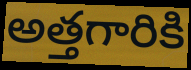
అత్తగారికి